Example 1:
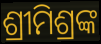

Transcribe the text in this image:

ଶ୍ରୀମିଶ୍ରଙ୍କ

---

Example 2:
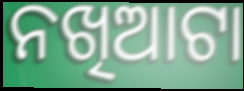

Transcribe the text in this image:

ନଖିଆଟା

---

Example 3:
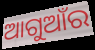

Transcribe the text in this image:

ଆଗୁଆଁର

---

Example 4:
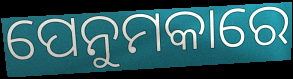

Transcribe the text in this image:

ପେନୁମକାରେ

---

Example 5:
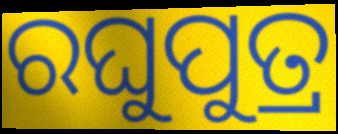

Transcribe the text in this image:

ରଘୁପୁତ୍ର